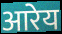
आरेय